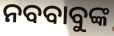
ନବବାବୁଙ୍କ